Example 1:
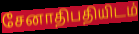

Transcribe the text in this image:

சேனாதிபதியிடம்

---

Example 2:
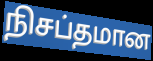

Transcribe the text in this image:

நிசப்தமான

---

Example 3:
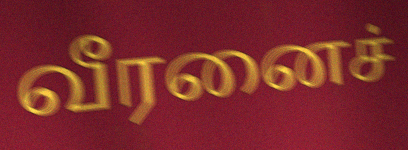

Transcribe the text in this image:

வீரனைச்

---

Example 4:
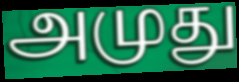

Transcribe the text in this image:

அமுது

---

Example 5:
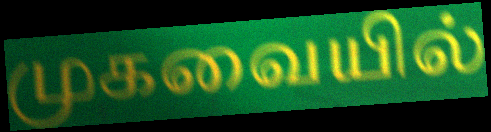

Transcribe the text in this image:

முகவையில்